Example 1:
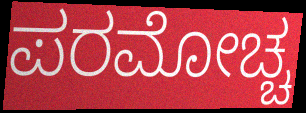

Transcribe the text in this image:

ಪರಮೋಚ್ಚ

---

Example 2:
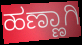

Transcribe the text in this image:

ಹಣ್ಣಾಗಿ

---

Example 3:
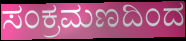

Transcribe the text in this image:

ಸಂಕ್ರಮಣದಿಂದ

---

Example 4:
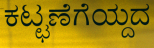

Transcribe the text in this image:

ಕಟ್ಟಣೆಗೆಯ್ದದ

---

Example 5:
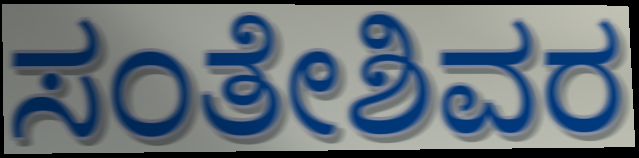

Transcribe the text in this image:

ಸಂತೇಶಿವರ